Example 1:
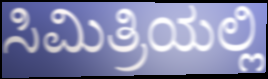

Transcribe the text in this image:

ಸಿಮಿತ್ರಿಯಲ್ಲಿ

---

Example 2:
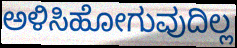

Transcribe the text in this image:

ಅಳಿಸಿಹೋಗುವುದಿಲ್ಲ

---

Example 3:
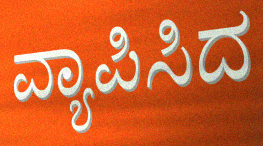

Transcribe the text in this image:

ವ್ಯಾಪಿಸಿದ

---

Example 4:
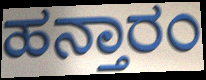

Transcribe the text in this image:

ಹನ್ತಾರಂ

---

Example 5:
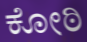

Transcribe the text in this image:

ಕೋಠಿ